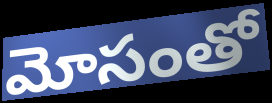
మోసంతో